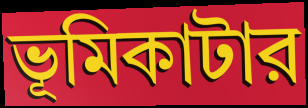
ভূমিকাটার